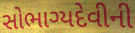
સોભાગ્યદેવીની